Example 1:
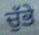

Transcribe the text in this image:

ਚੁੱਭੇ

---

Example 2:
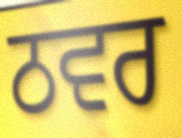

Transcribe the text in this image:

ਠਵਰ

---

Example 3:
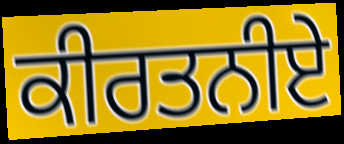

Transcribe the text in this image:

ਕੀਰਤਨੀਏ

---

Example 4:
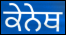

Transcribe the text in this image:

ਕੇਨੇਥ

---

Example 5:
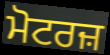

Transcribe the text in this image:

ਮੋਟਰਜ਼